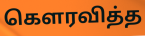
கெளரவித்த